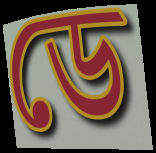
ডে